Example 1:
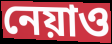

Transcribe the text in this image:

নেয়াও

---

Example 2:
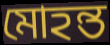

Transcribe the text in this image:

মোহন্ত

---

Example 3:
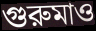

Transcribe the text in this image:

গুরুমাও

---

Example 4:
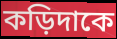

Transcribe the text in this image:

কড়িদাকে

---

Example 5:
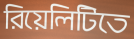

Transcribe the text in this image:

রিয়েলিটিতে